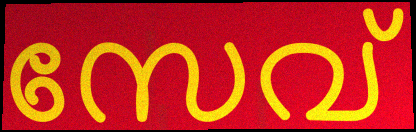
സേവ്